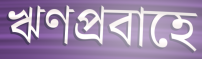
ঋণপ্রবাহে